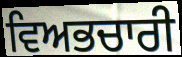
ਵਿਅਭਚਾਰੀ